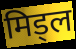
मिड्ल